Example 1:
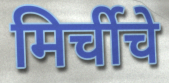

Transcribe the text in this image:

मिर्चीचे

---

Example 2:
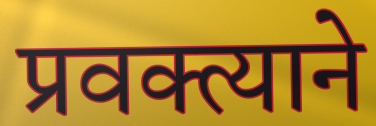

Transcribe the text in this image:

प्रवक्त्याने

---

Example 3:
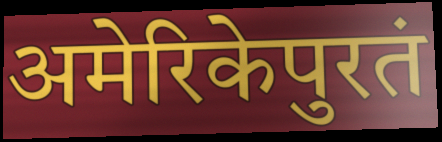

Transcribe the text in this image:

अमेरिकेपुरतं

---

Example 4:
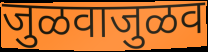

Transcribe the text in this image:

जुळवाजुळव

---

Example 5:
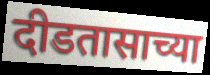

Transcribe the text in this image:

दीडतासाच्या